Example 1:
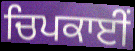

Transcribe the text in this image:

ਚਿਪਕਾਈਂ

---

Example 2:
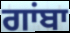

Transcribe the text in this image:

ਗਾਂਬਾ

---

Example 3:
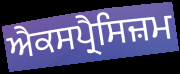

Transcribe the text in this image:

ਐਕਸਪ੍ਰੈਸਿਜ਼ਮ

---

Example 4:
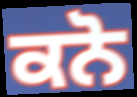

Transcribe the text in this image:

ਕਨੋ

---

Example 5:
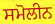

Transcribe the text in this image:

ਸਮੋਲੀਨ